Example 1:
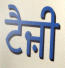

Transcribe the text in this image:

ਟੈਜ਼ੀ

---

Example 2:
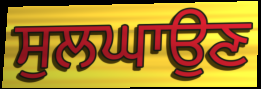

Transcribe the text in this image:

ਸੁਲਘਾਉਣ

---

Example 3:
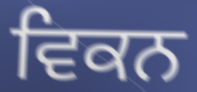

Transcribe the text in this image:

ਵਿਕਨ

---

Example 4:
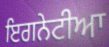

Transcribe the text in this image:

ਇਗਨੇਟੀਆ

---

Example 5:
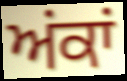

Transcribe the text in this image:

ਅਂਕਾਂ